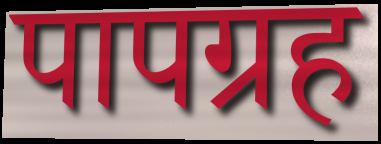
पापग्रह